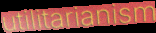
utilitarianism